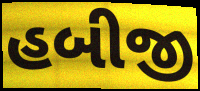
હબીજી